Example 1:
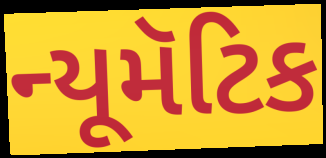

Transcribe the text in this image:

ન્યૂમૅટિક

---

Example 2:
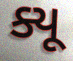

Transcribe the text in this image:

ક્યૂ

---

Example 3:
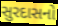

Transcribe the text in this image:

સુરદાસનો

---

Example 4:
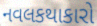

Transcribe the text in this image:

નવલકથાકારો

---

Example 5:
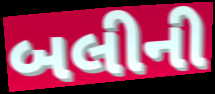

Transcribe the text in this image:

બલીની